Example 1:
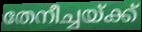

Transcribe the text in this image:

തേനീച്ചയ്ക്ക്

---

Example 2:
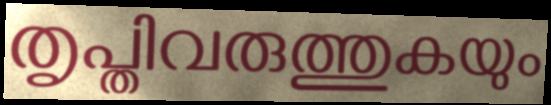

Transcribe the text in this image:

തൃപ്തിവരുത്തുകയും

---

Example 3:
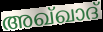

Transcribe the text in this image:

അഖ്ഖാദ്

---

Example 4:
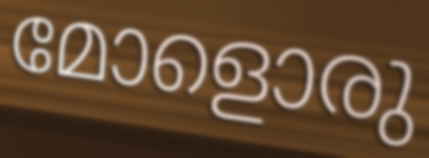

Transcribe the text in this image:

മോളൊരു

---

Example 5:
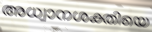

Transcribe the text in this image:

അധ്വാനശക്തിയെ